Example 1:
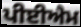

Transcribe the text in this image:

ਪੀਈਐਮ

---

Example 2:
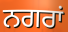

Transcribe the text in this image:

ਨਗਰਾਂ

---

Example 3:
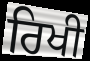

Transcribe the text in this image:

ਰਿਖੀ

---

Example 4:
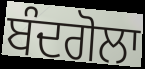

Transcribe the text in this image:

ਬੰਦਗੋਲਾ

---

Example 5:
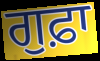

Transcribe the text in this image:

ਗੁਫ਼ਾ